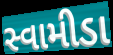
સ્વામીડા